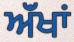
ਅੱਂਖਾਂ